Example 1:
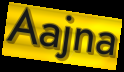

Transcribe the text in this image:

Aajna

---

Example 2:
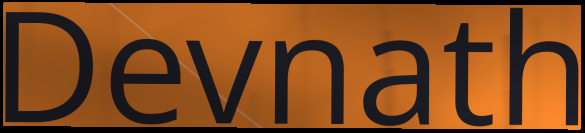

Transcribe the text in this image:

Devnath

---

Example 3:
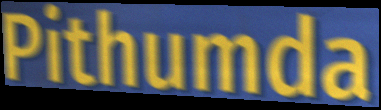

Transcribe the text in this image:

Pithumda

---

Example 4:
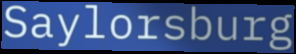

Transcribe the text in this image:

Saylorsburg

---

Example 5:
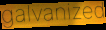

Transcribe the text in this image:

galvanized